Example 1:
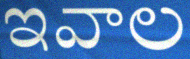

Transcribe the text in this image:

ఇవాల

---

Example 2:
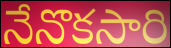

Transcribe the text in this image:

నేనొకసారి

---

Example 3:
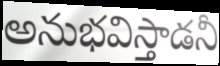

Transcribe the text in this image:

అనుభవిస్తాడనీ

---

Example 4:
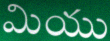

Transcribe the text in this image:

మియు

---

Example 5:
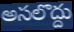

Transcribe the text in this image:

అసలొద్దు